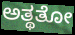
ಅತ್ಥತೋ